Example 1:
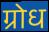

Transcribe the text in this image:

ग्रोध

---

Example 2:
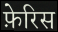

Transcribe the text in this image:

फ़ेरिस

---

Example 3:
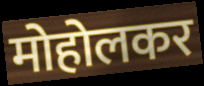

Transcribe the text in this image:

मोहोलकर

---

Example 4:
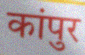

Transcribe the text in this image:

कांपुर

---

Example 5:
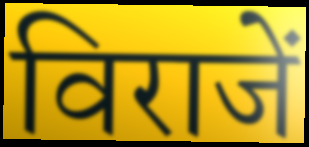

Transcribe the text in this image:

विराजें